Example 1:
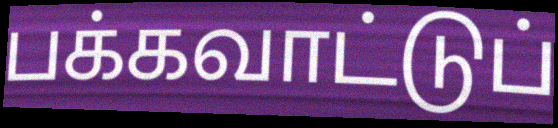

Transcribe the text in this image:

பக்கவாட்டுப்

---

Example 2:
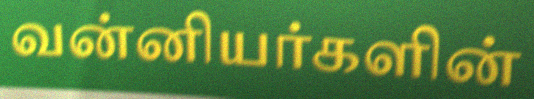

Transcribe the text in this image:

வன்னியர்களின்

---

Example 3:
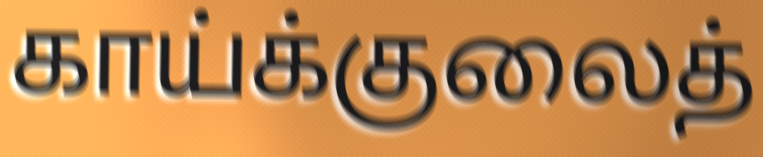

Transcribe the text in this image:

காய்க்குலைத்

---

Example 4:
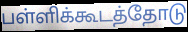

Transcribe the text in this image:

பள்ளிக்கூடத்தோடு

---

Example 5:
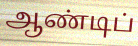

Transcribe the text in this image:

ஆண்டிப்